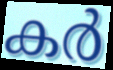
കർ